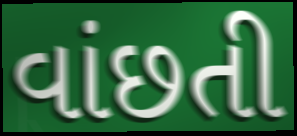
વાંછતી